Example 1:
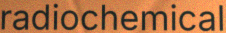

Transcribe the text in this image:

radiochemical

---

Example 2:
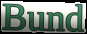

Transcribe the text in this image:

Bund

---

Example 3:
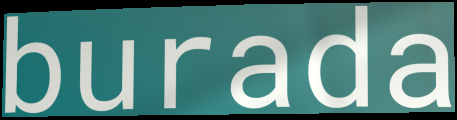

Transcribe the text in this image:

burada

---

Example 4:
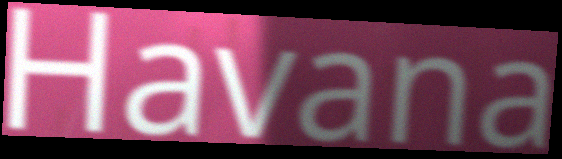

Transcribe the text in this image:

Havana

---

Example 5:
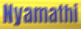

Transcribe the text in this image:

Nyamathi